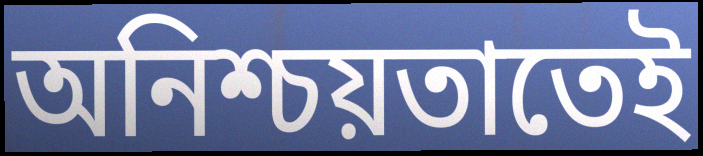
অনিশ্চয়তাতেই